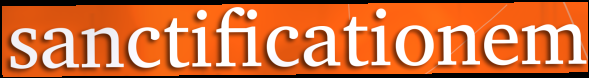
sanctificationem